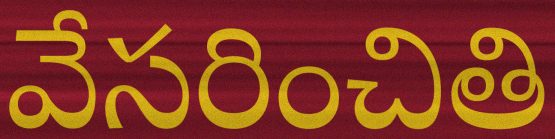
వేసరించితి